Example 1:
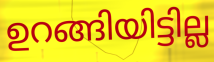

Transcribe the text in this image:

ഉറങ്ങിയിട്ടില്ല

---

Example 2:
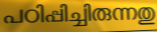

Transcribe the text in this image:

പഠിപ്പിച്ചിരുന്നതു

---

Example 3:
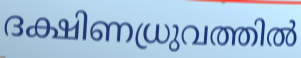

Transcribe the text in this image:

ദക്ഷിണധ്രുവത്തിൽ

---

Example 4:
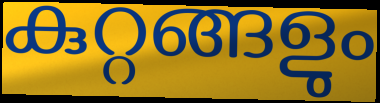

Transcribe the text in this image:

കുറ്റങ്ങളും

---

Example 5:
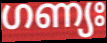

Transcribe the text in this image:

ഗണ്യഃ